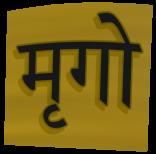
मृगो